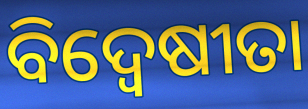
ବିଦ୍ଵେଷୀତା